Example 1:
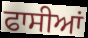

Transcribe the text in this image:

ਫਾਸੀਆਂ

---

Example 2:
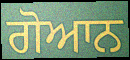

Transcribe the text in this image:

ਗੋਆਨ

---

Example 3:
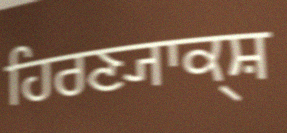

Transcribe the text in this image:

ਹਿਰਣ੍ਯਾਕ੍ਸ਼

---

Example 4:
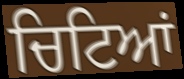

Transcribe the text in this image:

ਚਿਟਿਆਂ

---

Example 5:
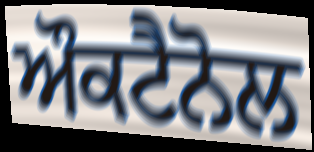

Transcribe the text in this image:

ਔਕਟੈਨੋਲ